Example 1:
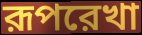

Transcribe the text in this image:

রূপরেখা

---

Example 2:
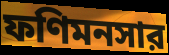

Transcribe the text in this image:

ফণিমনসার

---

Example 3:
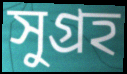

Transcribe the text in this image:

সুগ্রহ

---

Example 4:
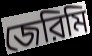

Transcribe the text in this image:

জেরিমি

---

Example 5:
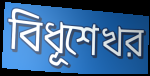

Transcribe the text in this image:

বিধূশেখর